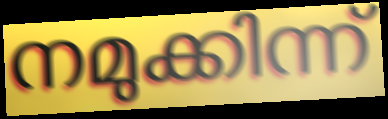
നമുക്കിന്ന്